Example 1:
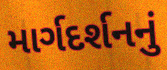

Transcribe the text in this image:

માર્ગદર્શનનું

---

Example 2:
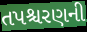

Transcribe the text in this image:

તપશ્ચરણની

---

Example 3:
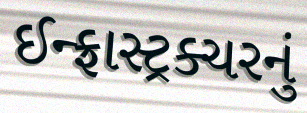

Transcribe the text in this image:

ઈન્ફ્રાસ્ટ્રક્ચરનું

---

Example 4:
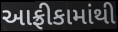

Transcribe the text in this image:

આફ્રીકામાંથી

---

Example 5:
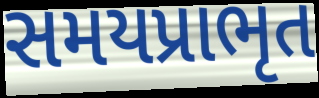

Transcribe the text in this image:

સમયપ્રાભૃત